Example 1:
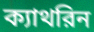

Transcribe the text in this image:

ক্যাথরিন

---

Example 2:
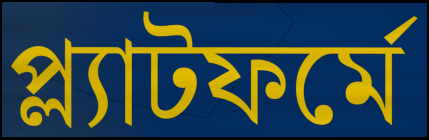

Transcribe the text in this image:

প্ল্যাটফর্মে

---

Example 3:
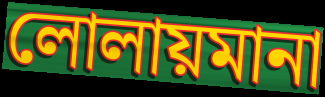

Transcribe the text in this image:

লোলায়মানা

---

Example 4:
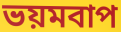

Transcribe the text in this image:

ভয়মবাপ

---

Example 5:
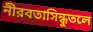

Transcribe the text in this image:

নীরবতাসিন্ধুতলে